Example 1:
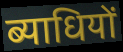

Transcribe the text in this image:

ब्याधियों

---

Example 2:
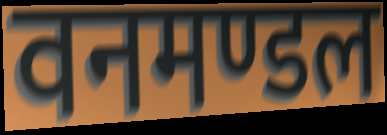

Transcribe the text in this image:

वनमण्डल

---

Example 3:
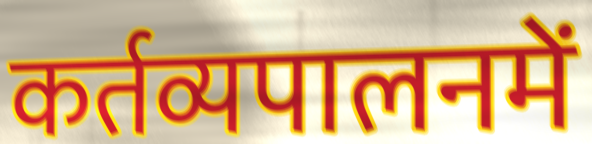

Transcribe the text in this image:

कर्तव्यपालनमें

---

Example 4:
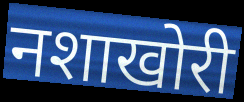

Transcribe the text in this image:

नशाखोरी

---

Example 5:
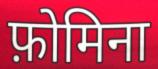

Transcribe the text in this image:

फ़ोमिना